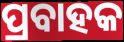
ପ୍ରବାହକ